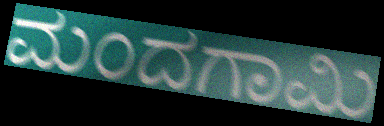
ಮಂದಗಾಮಿ